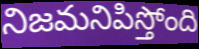
నిజమనిపిస్తోంది